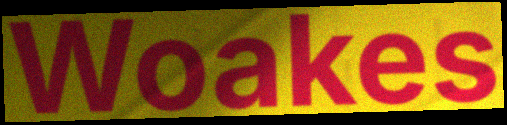
Woakes